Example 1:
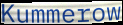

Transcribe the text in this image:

Kummerow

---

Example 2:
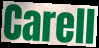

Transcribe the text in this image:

Carell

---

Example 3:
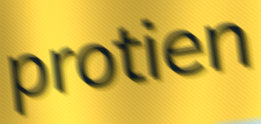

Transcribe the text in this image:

protien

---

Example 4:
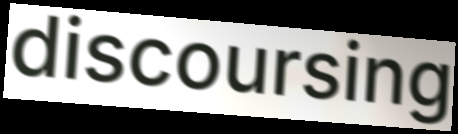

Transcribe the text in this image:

discoursing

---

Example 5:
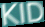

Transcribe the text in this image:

KID